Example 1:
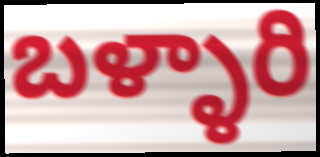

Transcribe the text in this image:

బళ్ళారి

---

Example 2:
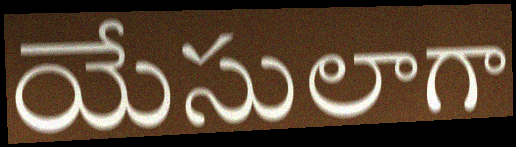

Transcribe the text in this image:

యేసులాగా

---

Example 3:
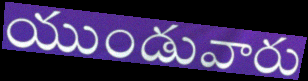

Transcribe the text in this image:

యుండువారు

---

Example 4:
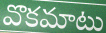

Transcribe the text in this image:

వొకమాటు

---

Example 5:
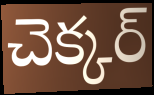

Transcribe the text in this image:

చెక్కర్